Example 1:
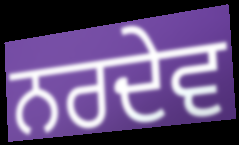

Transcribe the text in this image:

ਨਰਦੇਵ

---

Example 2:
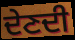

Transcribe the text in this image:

ਦੇਣਦੀ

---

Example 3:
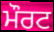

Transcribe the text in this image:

ਮੌਰਟ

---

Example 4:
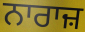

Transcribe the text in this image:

ਨਾਰਾਜ਼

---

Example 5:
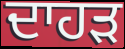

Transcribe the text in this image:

ਦਾਹੜ